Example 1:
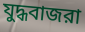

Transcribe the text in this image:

যুদ্ধবাজরা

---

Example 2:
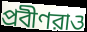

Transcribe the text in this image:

প্রবীণরাও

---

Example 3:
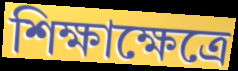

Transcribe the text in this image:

শিক্ষাক্ষেত্রে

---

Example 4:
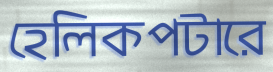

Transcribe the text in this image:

হেলিকপটারে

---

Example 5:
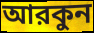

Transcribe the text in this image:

আরকুন